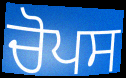
ਚੋਪਸ